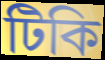
টিকি